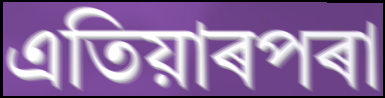
এতিয়াৰপৰা